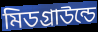
মিডগ্রাউন্ডে